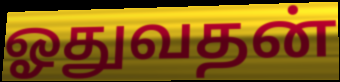
ஓதுவதன்